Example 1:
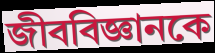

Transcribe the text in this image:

জীববিজ্ঞানকে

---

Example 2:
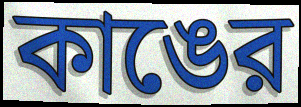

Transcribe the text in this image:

কাঙের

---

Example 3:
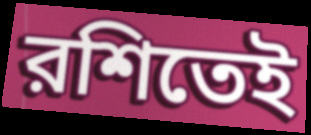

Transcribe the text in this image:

রশিতেই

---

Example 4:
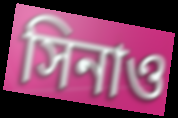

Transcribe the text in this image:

সিনাও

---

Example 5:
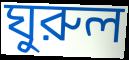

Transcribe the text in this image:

ঘুরুল